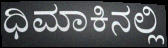
ಧಿಮಾಕಿನಲ್ಲಿ